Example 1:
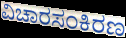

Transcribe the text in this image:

ವಿಚಾರಸಂಕಿರಣ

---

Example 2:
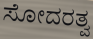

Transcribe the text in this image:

ಸೋದರತ್ವ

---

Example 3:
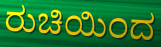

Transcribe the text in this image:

ರುಚಿಯಿಂದ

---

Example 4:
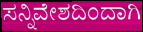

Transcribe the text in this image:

ಸನ್ನಿವೇಶದಿಂದಾಗಿ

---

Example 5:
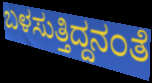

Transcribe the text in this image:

ಬಳಸುತ್ತಿದ್ದನಂತೆ